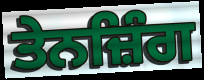
ਤੇਨਜ਼ਿੰਗ